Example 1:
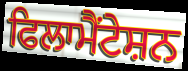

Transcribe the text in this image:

ਫਿਲਾਮੈਂਟੇਸ਼ਨ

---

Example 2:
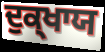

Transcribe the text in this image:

ਦੁਕ੍ਖਾਯ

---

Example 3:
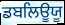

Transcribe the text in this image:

ਡਬਲਿਊਯੂ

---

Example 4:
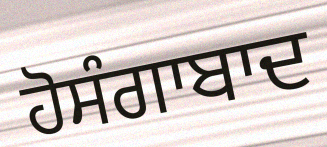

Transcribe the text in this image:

ਹੋਸੰਗਾਬਾਦ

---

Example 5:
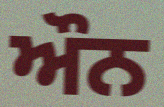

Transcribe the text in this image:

ਔਨ